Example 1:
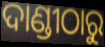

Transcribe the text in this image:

ଦାଣ୍ଡୀଠାରୁ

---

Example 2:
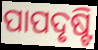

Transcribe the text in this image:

ପାପଦୃଷ୍ଟି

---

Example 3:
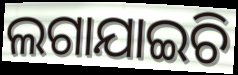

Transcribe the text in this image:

ଲଗାଯାଇଚି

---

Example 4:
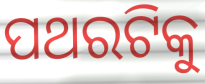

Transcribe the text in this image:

ପଥରଟିକୁ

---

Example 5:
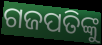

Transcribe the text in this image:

ଗଜପତିଙ୍କୁ